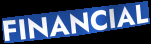
FINANCIAL